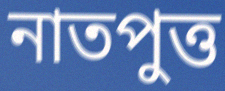
নাতপুত্ত